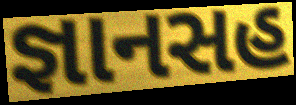
જ્ઞાનસહ